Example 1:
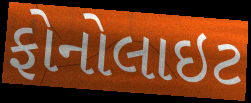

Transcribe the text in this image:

ફોનોલાઇટ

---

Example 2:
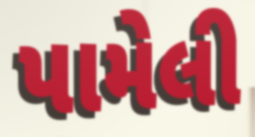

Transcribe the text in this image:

પામેલી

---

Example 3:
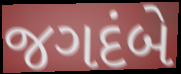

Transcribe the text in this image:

જગદંબે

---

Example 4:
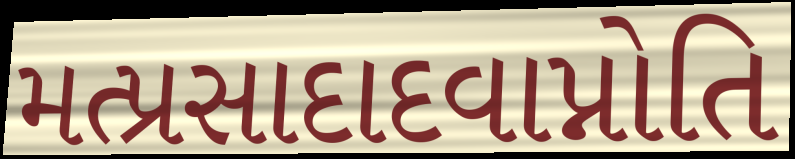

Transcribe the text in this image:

મત્પ્રસાદાદવાપ્નોતિ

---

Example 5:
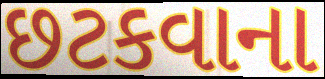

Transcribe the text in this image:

છટકવાના